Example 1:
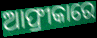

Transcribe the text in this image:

ଆଫ୍ରୀକାରେ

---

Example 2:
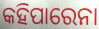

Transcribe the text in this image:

କହିପାରେନା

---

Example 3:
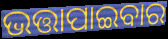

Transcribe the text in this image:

ଭତ୍ତାପାଇବାର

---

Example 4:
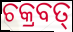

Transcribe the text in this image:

ଚକ୍ରବତ୍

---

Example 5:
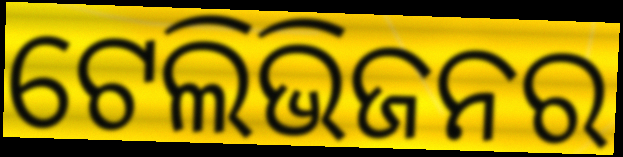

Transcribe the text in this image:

ଟେଲିଭିଜନର